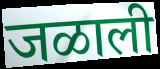
जळाली